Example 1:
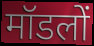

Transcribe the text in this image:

मॉडलों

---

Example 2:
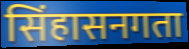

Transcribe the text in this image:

सिंहासनगता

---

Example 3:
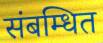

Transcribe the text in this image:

संबम्धित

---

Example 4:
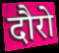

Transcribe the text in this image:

दौरो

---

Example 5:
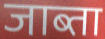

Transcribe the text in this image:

जाब्ता